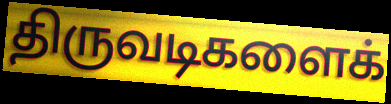
திருவடிகளைக்